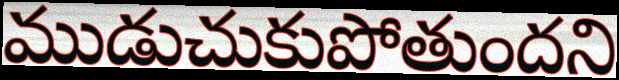
ముడుచుకుపోతుందని